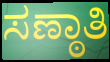
ಸಣ್ಠಾತಿ